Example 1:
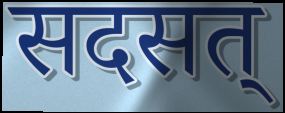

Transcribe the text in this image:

सदसत्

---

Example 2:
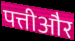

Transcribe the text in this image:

पत्तीऔर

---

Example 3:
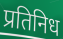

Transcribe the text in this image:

प्रतिनिध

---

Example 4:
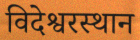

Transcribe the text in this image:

विदेश्वरस्थान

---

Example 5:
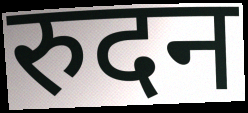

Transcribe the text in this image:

रुदन